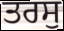
ਤਰਸੁ